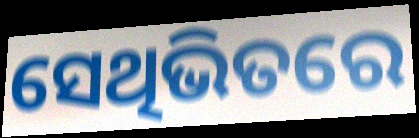
ସେଥିଭିତରେ